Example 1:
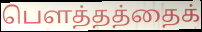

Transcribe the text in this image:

பௌத்தத்தைக்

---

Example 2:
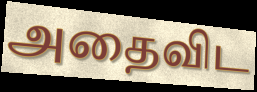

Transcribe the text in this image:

அதைவிட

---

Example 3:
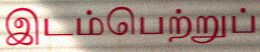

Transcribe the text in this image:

இடம்பெற்றுப்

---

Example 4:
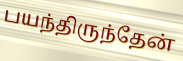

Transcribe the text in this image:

பயந்திருந்தேன்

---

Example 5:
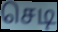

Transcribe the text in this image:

செடி